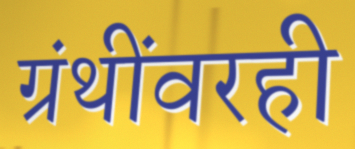
ग्रंथींवरही